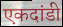
एकदांडी